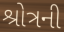
શ્રોત્રની